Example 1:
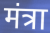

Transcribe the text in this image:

मंत्रा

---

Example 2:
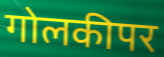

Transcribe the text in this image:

गोलकीपर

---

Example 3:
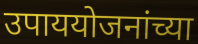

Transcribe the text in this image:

उपाययोजनांच्या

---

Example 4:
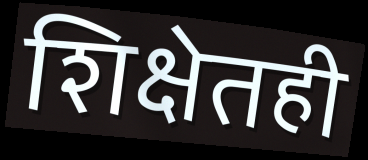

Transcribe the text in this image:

शिक्षेतही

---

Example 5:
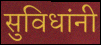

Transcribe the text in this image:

सुविधांनी